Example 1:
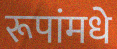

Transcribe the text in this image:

रूपांमधे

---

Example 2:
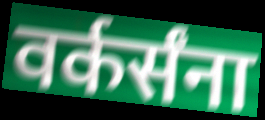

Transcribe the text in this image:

वर्कर्संना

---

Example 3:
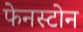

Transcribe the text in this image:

फेनस्टोन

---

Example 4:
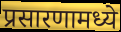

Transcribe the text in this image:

प्रसारणामध्ये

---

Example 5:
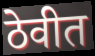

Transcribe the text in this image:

ठेवीत